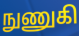
நுணுகி